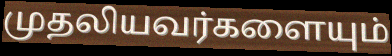
முதலியவர்களையும்